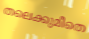
തലെക്കുമീതെ